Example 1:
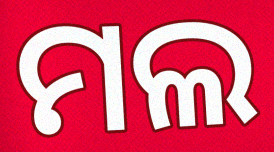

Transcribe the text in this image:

ମଲ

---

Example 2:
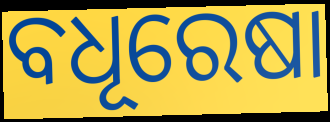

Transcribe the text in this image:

ବଧୂରେଷା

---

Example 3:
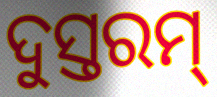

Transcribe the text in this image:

ଦୁସ୍ତରମ୍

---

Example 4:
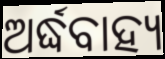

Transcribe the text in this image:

ଅର୍ଦ୍ଧବାହ୍ୟ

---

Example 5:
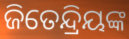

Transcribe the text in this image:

ଜିତେନ୍ଦ୍ରିୟଙ୍କ